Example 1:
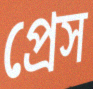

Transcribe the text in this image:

প্রেস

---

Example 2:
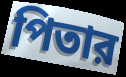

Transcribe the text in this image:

পিতার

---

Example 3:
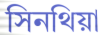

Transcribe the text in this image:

সিনথিয়া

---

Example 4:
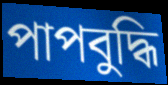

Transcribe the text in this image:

পাপবুদ্ধি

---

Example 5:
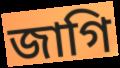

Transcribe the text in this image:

জাগি